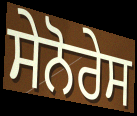
ਸੇਨੋਰੇਸ